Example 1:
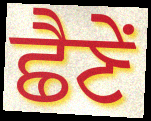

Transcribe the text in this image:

ਛੈਣੇਂ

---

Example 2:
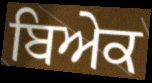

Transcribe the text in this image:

ਬਿਅੇਕ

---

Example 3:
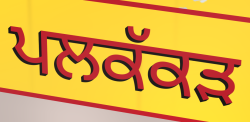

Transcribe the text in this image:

ਪਲਕੱਕੜ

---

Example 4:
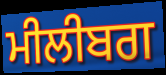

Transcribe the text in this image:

ਮੀਲੀਬਗ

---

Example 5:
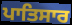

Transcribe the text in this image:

ਪਾਤਿਸਾਰ